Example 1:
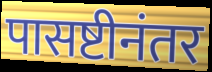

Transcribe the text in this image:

पासष्टीनंतर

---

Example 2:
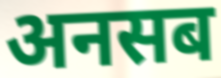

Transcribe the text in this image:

अनसब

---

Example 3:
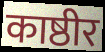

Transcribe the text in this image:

काष्ठीर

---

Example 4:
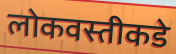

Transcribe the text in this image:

लोकवस्तीकडे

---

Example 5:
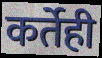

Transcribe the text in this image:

कर्तेही